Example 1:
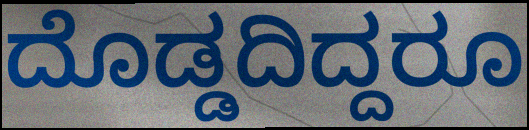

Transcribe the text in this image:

ದೊಡ್ಡದಿದ್ದರೂ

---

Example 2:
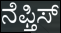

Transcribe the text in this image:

ನೆಫ್ತಿಸ್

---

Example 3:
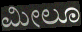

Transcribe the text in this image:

ಮೀಲೂ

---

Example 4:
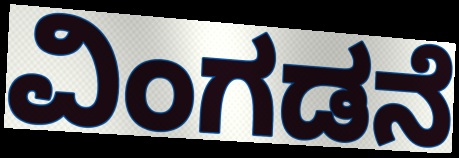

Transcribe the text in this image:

ವಿಂಗಡನೆ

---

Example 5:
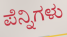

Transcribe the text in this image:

ಪೆನ್ನಿಗಳು